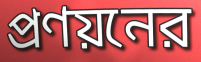
প্রণয়নের